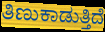
ತಿಣುಕಾಡುತ್ತಿದೆ